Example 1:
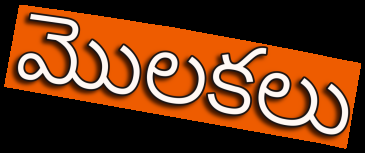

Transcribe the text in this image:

మొలకలు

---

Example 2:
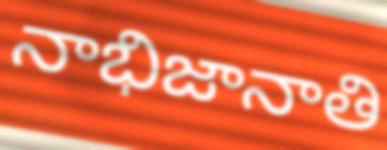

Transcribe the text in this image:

నాభిజానాతి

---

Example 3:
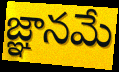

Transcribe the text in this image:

జ్ఞానమే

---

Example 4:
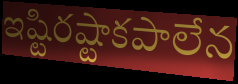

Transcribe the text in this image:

ఇష్టిరష్టాకపాలేన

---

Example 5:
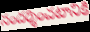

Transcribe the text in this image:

సందర్శించటానికి